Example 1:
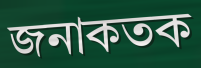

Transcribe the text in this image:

জনাকতক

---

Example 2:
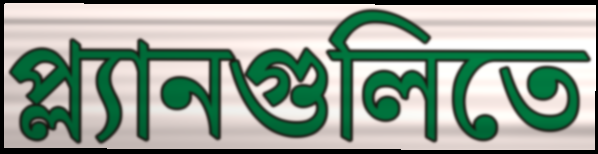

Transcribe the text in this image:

প্ল্যানগুলিতে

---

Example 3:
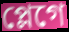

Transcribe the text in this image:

প্লেগে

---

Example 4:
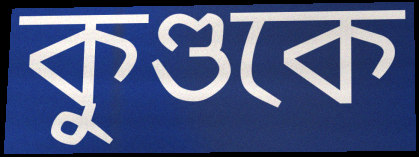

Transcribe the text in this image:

কুণ্ডকে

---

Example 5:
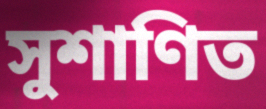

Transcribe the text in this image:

সুশাণিত